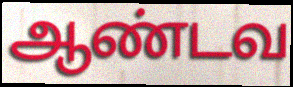
ஆண்டவ